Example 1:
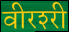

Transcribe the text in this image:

वीरश्री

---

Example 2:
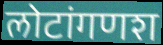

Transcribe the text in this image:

लोटांगणश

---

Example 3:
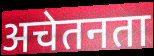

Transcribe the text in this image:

अचेतनता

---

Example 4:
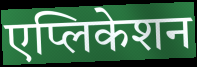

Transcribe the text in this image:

एप्लिकेशन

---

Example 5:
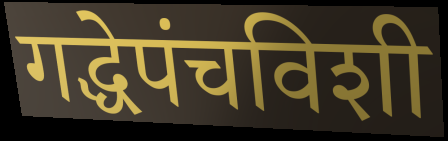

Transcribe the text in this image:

गद्धेपंचविशी